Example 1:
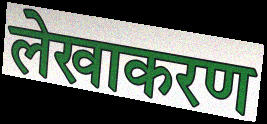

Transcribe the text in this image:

लेखाकरण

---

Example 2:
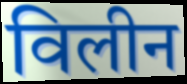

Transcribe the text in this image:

विलीन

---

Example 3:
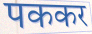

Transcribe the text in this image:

पककर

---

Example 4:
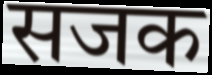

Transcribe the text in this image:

सजक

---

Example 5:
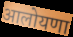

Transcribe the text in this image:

आलोयणा